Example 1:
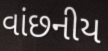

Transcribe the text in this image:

વાંછનીય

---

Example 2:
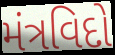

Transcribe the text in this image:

મંત્રવિદો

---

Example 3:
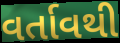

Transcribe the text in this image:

વર્તાવથી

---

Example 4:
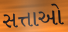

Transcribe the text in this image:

સત્તાઓ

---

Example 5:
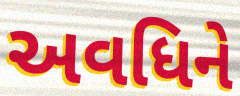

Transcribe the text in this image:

અવધિને